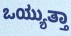
ಒಯ್ಯುತ್ತಾ